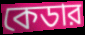
কেডার